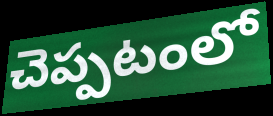
చెప్పటంలో